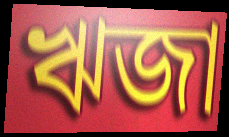
ঋজা